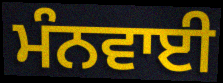
ਮੰਨਵਾਈ